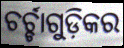
ଚର୍ଚ୍ଚାଗୁଡ଼ିକର